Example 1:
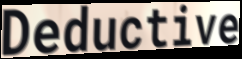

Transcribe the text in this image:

Deductive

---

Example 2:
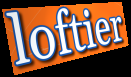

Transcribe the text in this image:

loftier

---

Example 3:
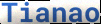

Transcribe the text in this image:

Tianao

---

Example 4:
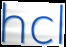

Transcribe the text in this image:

hcl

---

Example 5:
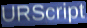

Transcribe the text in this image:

URScript